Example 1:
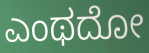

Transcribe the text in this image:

ಎಂಥದೋ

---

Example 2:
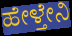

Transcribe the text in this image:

ಹೇಳ್ತೇನಿ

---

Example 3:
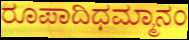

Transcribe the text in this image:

ರೂಪಾದಿಧಮ್ಮಾನಂ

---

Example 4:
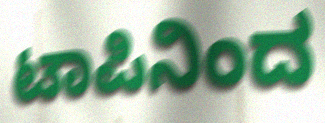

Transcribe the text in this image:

ಟಾಪಿನಿಂದ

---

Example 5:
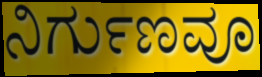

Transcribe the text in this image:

ನಿರ್ಗುಣವೂ